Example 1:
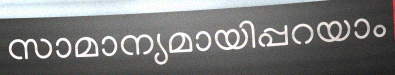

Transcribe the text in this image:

സാമാന്യമായിപ്പറയാം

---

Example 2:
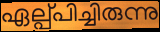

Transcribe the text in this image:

ഏല്പ്പിച്ചിരുന്നു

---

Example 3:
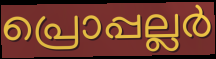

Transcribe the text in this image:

പ്രൊപ്പല്ലർ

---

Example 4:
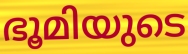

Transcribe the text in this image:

ഭൂമിയുടെ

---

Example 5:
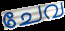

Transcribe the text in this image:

ചേവ